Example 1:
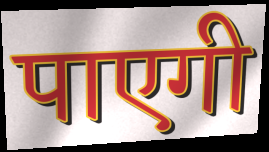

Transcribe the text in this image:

पाएगी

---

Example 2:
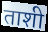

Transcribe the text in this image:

ताशी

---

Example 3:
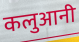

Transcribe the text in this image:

कलुआनी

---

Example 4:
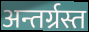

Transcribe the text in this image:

अन्तर्ग्रस्त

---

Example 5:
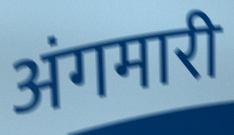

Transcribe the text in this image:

अंगमारी